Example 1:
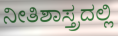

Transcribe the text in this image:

ನೀತಿಶಾಸ್ತ್ರದಲ್ಲಿ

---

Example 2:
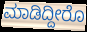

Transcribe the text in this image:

ಮಾಡಿದ್ದೀರೊ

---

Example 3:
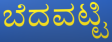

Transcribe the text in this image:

ಬೆದವಟ್ಟಿ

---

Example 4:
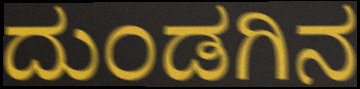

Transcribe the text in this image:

ದುಂಡಗಿನ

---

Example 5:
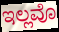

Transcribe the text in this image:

ಇಲ್ಲವೊ